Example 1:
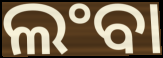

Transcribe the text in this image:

ଲଂବା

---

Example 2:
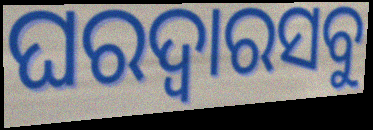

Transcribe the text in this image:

ଘରଦ୍ୱାରସବୁ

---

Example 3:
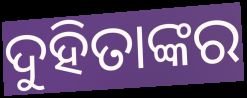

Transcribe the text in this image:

ଦୁହିତାଙ୍କର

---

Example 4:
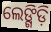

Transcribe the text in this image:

ଲେଙ୍ଗିଡ଼ି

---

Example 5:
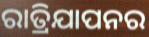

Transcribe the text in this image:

ରାତ୍ରିଯାପନର